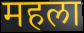
महला